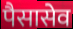
पैसासेव